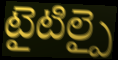
టైటిల్పై